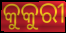
କୁକୁରୀ